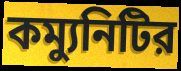
কম্যুনিটির